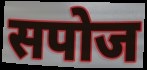
सपोज